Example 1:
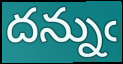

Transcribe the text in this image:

దన్నుఁ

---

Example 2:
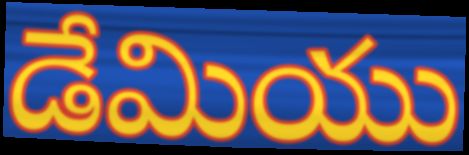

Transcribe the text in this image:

డేమియు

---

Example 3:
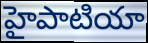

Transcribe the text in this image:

హైపాటియా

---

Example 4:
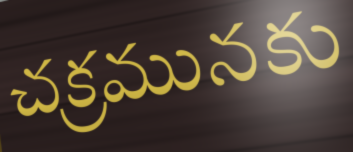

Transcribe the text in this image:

చక్రమునకు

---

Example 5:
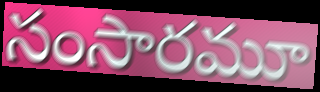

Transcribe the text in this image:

సంసారమూ